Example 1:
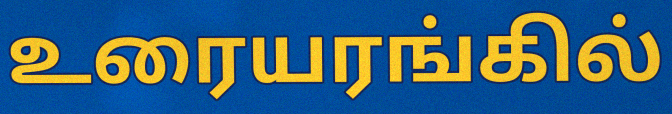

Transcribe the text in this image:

உரையரங்கில்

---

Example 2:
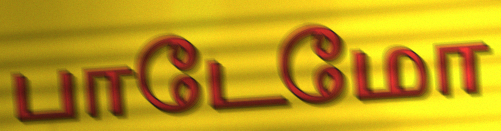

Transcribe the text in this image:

பாடேமோ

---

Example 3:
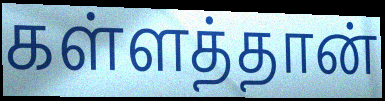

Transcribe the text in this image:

கள்ளத்தான்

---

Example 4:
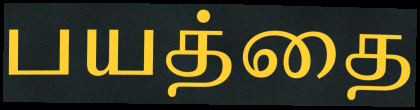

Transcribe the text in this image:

பயத்தை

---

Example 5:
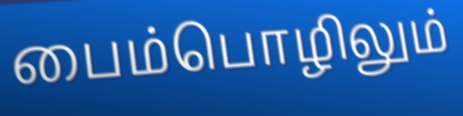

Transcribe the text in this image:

பைம்பொழிலும்